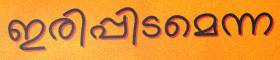
ഇരിപ്പിടമെന്ന